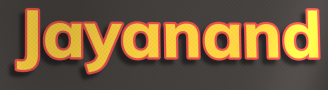
Jayanand